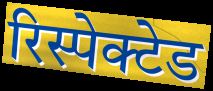
रिस्पेक्टेड